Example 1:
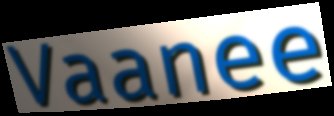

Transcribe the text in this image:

Vaanee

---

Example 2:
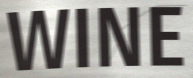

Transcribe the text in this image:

WINE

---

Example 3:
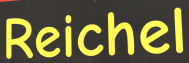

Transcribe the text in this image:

Reichel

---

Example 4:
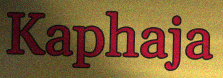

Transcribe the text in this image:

Kaphaja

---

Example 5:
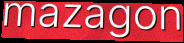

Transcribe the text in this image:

mazagon